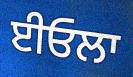
ਈਓਲਾ